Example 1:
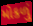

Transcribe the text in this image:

મોકળું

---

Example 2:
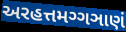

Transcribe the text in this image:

અરહત્તમગ્ગઞાણં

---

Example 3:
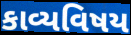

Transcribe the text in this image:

કાવ્યવિષય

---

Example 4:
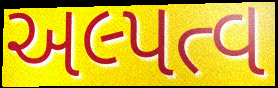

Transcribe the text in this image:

અલ્પત્વ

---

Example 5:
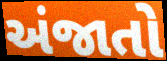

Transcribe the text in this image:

અંજાતો